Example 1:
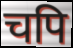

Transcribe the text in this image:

चपि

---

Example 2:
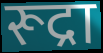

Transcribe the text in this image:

रूद्रा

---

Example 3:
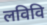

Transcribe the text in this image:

लविवि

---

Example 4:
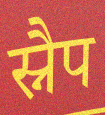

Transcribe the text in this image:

स्नैप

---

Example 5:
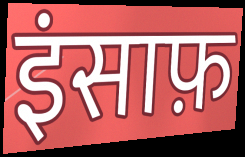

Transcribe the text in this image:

इंसाफ़